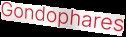
Gondophares